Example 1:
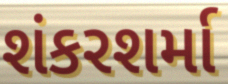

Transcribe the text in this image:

શંકરશર્મા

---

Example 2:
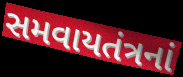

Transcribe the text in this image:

સમવાયતંત્રનાં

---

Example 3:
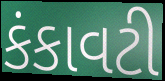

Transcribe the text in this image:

કંકાવટી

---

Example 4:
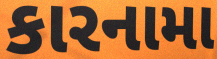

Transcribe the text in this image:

કારનામા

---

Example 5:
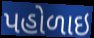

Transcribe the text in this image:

પહોળાઇ